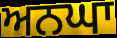
ਅਨਘਾ